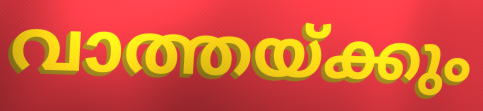
വാത്തയ്ക്കും